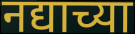
नद्याच्या